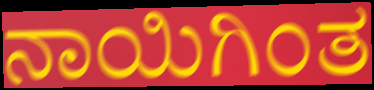
ನಾಯಿಗಿಂತ